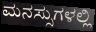
ಮನಸ್ಸುಗಳಲ್ಲಿ